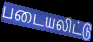
படையலிட்டு